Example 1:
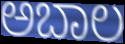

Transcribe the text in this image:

ಅಬಾಲ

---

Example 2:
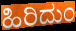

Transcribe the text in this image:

ಹಿರಿದುಂ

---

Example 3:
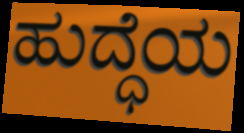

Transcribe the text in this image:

ಹುದ್ಧೆಯ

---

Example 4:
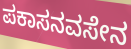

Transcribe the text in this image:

ಪಕಾಸನವಸೇನ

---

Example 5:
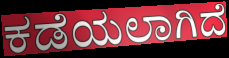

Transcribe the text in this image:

ಕಡೆಯಲಾಗಿದೆ